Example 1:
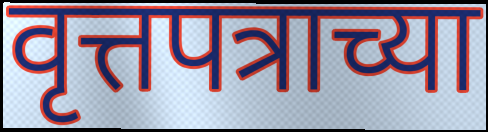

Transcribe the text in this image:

वृत्तपत्राच्या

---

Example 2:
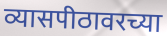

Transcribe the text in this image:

व्यासपीठावरच्या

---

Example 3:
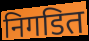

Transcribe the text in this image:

निगडित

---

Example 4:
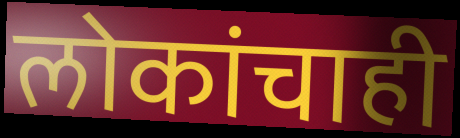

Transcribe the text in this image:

लोकांचाही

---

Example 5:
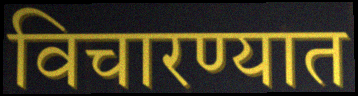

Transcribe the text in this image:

विचारण्यात